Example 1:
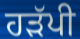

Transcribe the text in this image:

ਹੜੱਪੀ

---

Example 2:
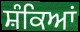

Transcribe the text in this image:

ਸ਼ੰਕਿਆਂ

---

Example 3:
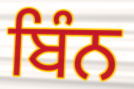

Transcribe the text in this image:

ਬਿੰਨ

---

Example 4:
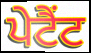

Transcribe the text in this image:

ਪੇਟੈਂਟ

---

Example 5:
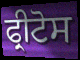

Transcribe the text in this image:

ਫ੍ਰੀਟੋਸ